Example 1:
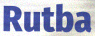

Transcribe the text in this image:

Rutba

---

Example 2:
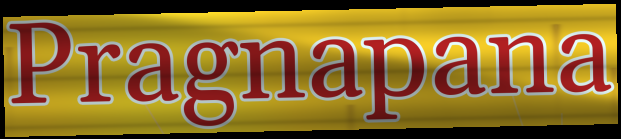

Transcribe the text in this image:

Pragnapana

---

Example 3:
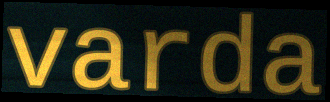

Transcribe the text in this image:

varda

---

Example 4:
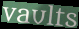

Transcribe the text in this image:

vaults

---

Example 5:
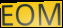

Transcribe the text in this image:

EOM